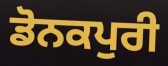
ਡੋਨਕਪੁਰੀ